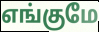
எங்குமே